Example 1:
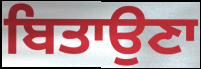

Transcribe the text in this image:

ਬਿਤਾਉਣਾ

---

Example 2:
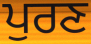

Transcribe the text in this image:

ਪੁਰਣ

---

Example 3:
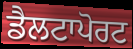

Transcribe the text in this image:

ਡੈਲਟਾਪੋਰਟ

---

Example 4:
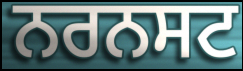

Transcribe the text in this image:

ਨਰਨਸਟ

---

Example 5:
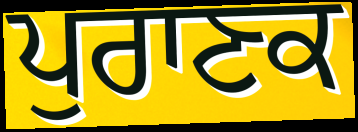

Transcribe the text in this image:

ਪੁਰਾਣਕ